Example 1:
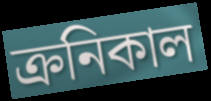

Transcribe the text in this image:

ক্রনিকাল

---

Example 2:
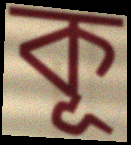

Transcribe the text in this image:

কূ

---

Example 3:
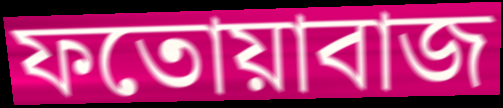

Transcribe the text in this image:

ফতোয়াবাজ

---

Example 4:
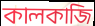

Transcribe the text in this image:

কালকাজি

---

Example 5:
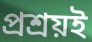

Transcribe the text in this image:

প্রশ্রয়ই